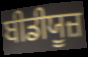
ਬੀਡੀਯੂਜ਼